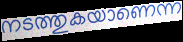
നടത്തുകയാണെന്ന